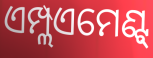
ଏମ୍ପ୍ଲଏମେଣ୍ଟ୍